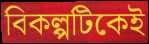
বিকল্পটিকেই